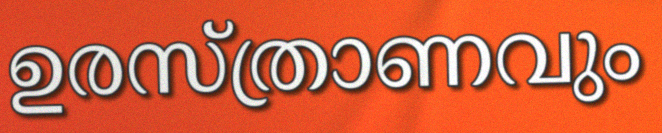
ഉരസ്ത്രാണവും